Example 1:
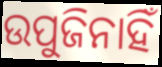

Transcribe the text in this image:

ଉପୁଜିନାହିଁ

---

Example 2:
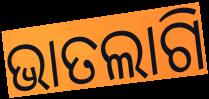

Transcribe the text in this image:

ଭାତଲାଗି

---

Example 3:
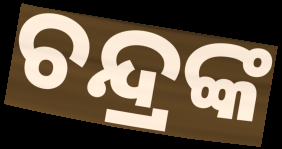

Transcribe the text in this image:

ଚନ୍ଦ୍ରଙ୍କ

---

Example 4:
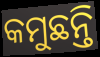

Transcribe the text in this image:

କମୁଛନ୍ତି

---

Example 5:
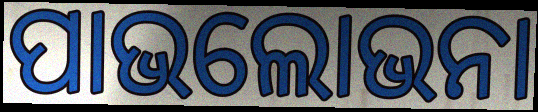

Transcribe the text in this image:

ପାଭଲୋଭନା